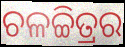
ଚଳଚ୍ଚିତ୍ରର